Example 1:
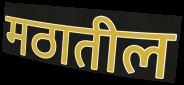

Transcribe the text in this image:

मठातील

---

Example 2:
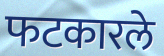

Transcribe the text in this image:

फटकारले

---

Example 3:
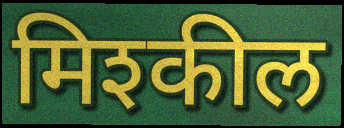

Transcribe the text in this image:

मिश्कील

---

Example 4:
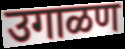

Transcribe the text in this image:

उगाळण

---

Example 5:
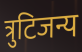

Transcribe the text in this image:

त्रुटिजन्य